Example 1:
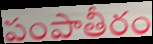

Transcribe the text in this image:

పంపాతీరం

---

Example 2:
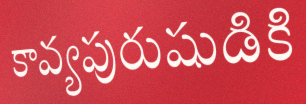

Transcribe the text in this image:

కావ్యపురుషుడికి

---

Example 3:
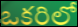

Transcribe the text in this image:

ఒకరిలో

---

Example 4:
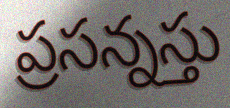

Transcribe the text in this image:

ప్రసన్నస్తు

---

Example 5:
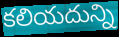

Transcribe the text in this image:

కలియదున్ని